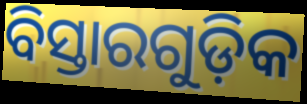
ବିସ୍ତାରଗୁଡ଼ିକ